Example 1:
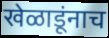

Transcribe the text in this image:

खेळाडूंनाच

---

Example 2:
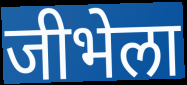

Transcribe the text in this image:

जीभेला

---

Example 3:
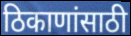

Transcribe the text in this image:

ठिकाणांसाठी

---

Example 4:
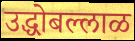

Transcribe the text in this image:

उद्धोबल्लाळ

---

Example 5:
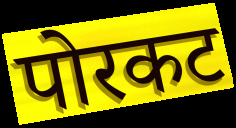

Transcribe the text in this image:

पोरकट